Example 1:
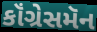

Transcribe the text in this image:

કૉંગ્રેસમૅન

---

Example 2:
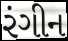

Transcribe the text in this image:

રંગીન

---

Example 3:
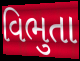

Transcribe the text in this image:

વિભુતા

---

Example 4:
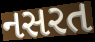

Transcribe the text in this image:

નસરત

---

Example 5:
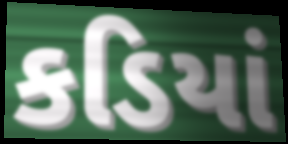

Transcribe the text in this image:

કડિયાં